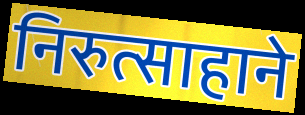
निरुत्साहाने